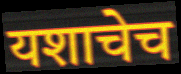
यशाचेच